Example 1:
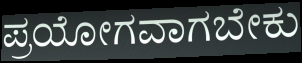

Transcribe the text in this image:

ಪ್ರಯೋಗವಾಗಬೇಕು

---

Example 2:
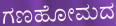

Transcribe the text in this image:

ಗಣಹೋಮದ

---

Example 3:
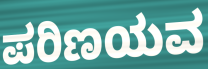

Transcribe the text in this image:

ಪರಿಣಯವ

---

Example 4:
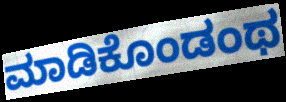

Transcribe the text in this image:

ಮಾಡಿಕೊಂಡಂಥ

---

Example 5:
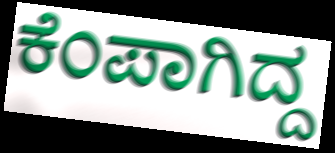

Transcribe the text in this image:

ಕೆಂಪಾಗಿದ್ದ